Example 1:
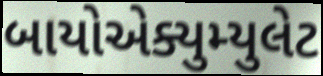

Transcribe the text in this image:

બાયોએક્યુમ્યુલેટ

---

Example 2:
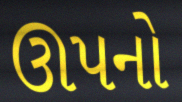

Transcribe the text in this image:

ઊપનો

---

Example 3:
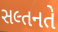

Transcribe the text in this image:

સલ્તનતે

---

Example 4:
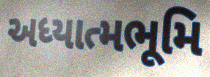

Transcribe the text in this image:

અધ્યાત્મભૂમિ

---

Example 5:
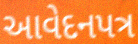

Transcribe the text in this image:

આવેદનપત્ર